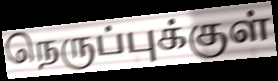
நெருப்புக்குள்